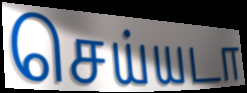
செய்யடா